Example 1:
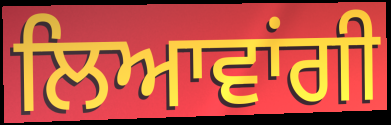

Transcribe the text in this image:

ਲਿਆਵਾਂਗੀ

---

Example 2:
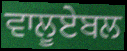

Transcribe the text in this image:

ਵਾਲੂਏਬਲ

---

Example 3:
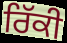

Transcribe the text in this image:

ਰਿੱਕੀ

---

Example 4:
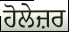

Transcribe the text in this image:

ਹੋਲੇਜ਼ਰ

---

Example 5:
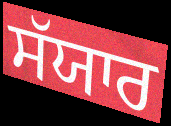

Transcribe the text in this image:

ਸੱਯਾਰ